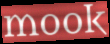
mook